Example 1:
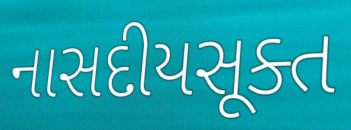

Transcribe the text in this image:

નાસદીયસૂક્ત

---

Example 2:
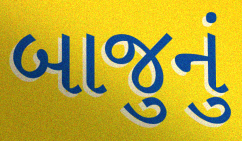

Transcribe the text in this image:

બાજુનું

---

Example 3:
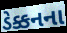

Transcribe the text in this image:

ડેક્કનના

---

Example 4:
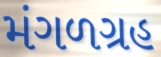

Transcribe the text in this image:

મંગળગ્રહ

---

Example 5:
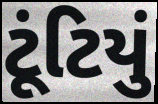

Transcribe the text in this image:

ટૂંટિયું